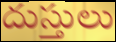
దుస్తులు